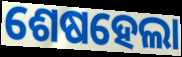
ଶେଷହେଲା